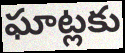
ఘాట్లకు